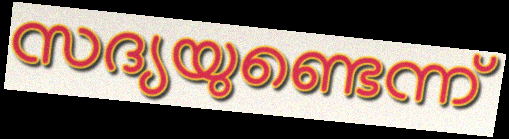
സദ്യയുണ്ടെന്ന്